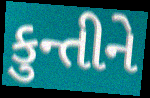
કુન્તીને